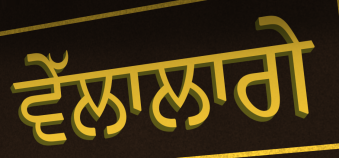
ਵੇੱਲਾਲਾਗੇ